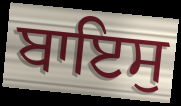
ਬਾਇਸੁ